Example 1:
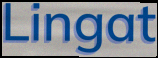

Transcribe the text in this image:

Lingat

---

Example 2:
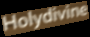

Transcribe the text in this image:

Holydivine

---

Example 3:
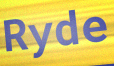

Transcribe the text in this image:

Ryde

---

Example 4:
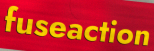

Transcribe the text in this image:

fuseaction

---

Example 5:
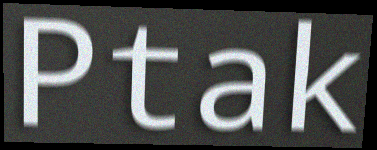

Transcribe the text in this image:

Ptak